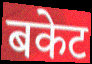
बकेट